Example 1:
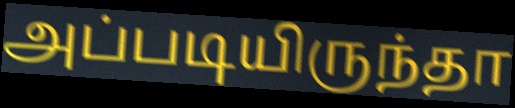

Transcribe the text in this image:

அப்படியிருந்தா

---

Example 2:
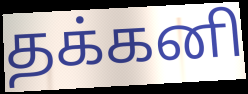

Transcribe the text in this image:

தக்கனி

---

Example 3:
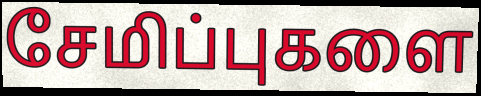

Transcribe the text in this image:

சேமிப்புகளை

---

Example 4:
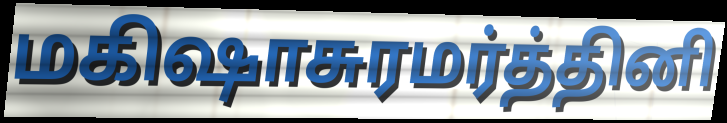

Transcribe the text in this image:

மகிஷாசுரமர்த்தினி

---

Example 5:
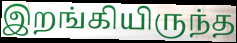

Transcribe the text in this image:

இறங்கியிருந்த